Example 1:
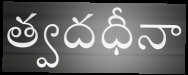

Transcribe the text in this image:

త్వదధీనా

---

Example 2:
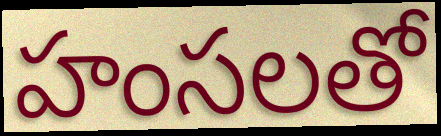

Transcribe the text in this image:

హంసలతో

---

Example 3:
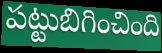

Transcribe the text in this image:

పట్టుబిగించింది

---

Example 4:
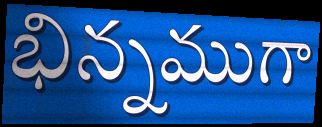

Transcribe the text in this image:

భిన్నముగా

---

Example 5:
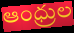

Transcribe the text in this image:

ఆంధ్రుల